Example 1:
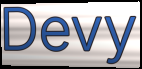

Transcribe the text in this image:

Devy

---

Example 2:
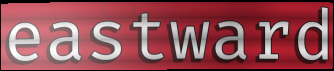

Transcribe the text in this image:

eastward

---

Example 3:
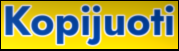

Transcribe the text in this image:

Kopijuoti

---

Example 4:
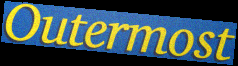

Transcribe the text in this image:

Outermost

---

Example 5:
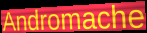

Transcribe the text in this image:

Andromache